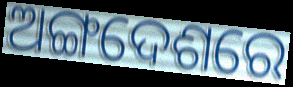
ଅଙ୍ଗଦେଶରେ